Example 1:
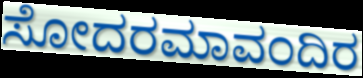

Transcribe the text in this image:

ಸೋದರಮಾವಂದಿರ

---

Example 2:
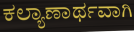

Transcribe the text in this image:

ಕಲ್ಯಾಣಾರ್ಥವಾಗಿ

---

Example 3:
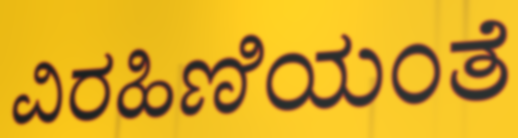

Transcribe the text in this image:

ವಿರಹಿಣಿಯಂತೆ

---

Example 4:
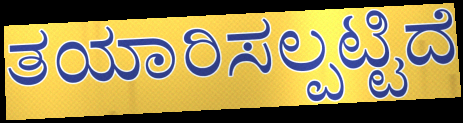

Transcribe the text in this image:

ತಯಾರಿಸಲ್ಪಟ್ಟಿದೆ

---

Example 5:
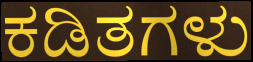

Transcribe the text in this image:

ಕಡಿತಗಳು